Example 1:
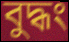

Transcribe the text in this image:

বুদ্ধং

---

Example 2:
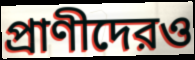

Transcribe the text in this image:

প্রাণীদেরও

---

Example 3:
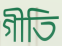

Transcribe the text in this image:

গীতি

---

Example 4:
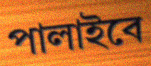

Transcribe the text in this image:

পালাইবে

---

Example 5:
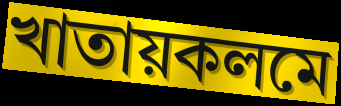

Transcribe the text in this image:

খাতায়কলমে